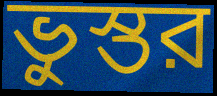
ভুস্তর